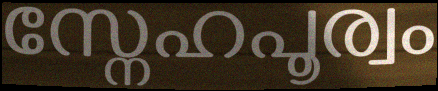
സ്നേഹപൂര്വം